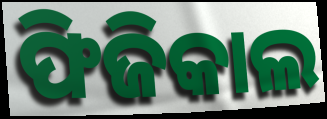
ଫିଜିକାଲ